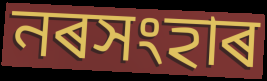
নৰসংহাৰ